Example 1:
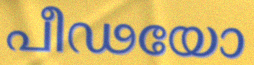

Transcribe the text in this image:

പീഢയോ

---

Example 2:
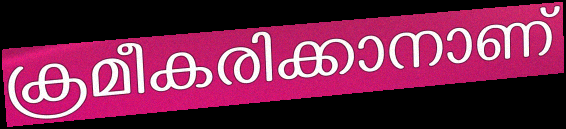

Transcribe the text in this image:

ക്രമീകരിക്കാനാണ്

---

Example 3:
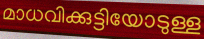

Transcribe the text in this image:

മാധവിക്കുട്ടിയോടുള്ള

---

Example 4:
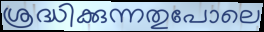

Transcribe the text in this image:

ശ്രദ്ധിക്കുന്നതുപോലെ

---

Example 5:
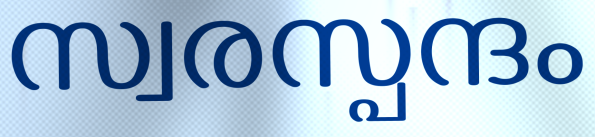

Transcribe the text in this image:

സ്വരസ്പന്ദം